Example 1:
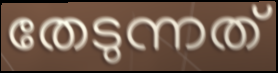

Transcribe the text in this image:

തേടുന്നത്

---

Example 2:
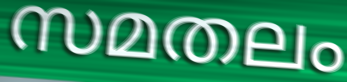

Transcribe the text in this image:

സമതലം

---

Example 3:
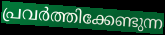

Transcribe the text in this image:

പ്രവർത്തിക്കേണ്ടുന്ന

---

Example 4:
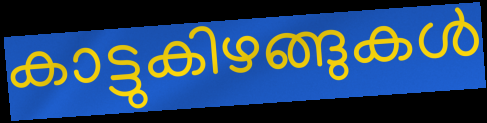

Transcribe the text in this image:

കാട്ടുകിഴങ്ങുകൾ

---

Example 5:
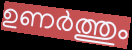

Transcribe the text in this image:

ഉണർത്തും